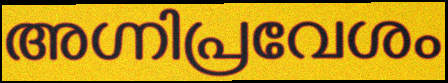
അഗ്നിപ്രവേശം